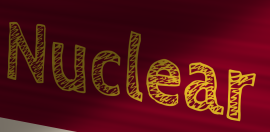
Nuclear